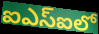
ఐఎస్ఐలో